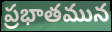
ప్రభాతమున